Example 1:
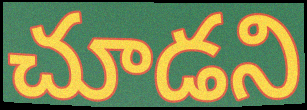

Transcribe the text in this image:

చూడని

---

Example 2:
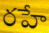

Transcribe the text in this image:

రహే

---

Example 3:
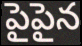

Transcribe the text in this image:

పైపైన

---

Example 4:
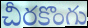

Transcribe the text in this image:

చీరకొంగు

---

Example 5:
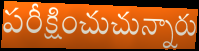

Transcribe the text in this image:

పరీక్షించుచున్నారు